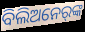
ବିଲିଅନେର୍‌ଙ୍କ